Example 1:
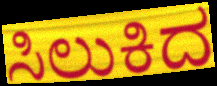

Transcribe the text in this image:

ಸಿಲುಕಿದ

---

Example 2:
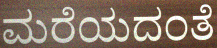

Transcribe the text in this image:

ಮರೆಯದಂತೆ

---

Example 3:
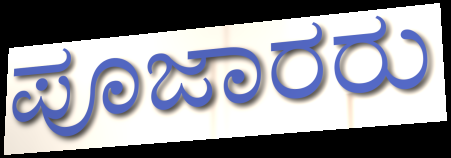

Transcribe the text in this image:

ಪೂಜಾರರು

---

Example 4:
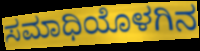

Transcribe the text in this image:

ಸಮಾಧಿಯೊಳಗಿನ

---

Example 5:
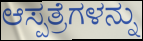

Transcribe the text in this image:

ಆಸ್ಪತ್ರೆಗಳನ್ನು